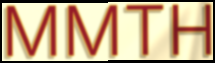
MMTH